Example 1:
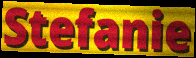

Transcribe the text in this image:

Stefanie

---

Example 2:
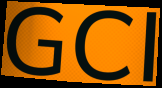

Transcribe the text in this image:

GCI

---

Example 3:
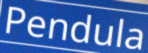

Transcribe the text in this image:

Pendula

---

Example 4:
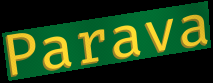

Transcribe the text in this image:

Parava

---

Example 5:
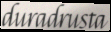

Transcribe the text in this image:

duradrusta